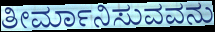
ತೀರ್ಮಾನಿಸುವವನು